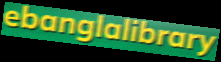
ebanglalibrary